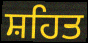
ਸ਼ਹਿਤ